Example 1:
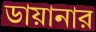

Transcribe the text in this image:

ডায়ানার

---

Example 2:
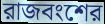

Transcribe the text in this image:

রাজবংশের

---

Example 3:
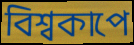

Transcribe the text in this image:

বিশ্বকাপে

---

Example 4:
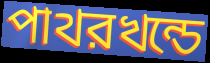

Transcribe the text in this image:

পাথরখন্ডে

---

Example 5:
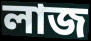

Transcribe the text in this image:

লাজ